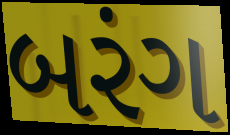
બરંગ